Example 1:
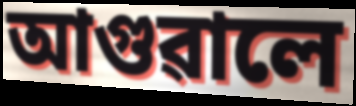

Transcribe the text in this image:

আগুৱালে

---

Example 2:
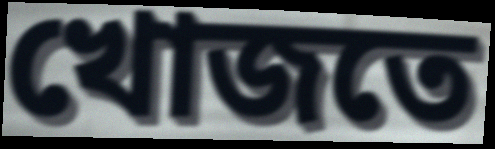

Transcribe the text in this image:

খোজতে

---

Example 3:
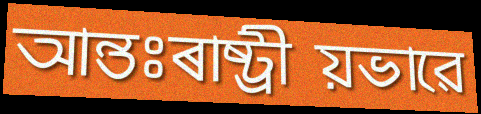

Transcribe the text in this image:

আন্তঃৰাষ্ট্ৰীয়ভাৱে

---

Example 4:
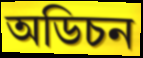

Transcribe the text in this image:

অডিচন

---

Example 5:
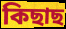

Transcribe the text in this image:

কিছাছ